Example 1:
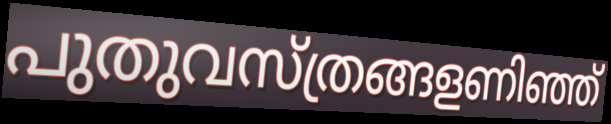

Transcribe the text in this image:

പുതുവസ്ത്രങ്ങളണിഞ്ഞ്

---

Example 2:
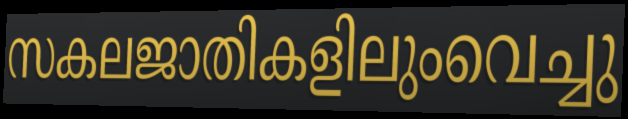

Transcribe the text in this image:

സകലജാതികളിലുംവെച്ചു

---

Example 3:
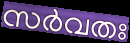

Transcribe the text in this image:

സർവതഃ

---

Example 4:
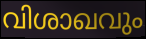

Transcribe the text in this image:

വിശാഖവും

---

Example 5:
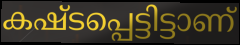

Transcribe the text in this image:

കഷ്ടപ്പെട്ടിട്ടാണ്